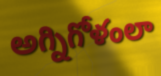
అగ్నిగోళంలా